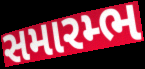
સમારમ્ભ